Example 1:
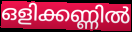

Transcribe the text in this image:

ഒളിക്കണ്ണിൽ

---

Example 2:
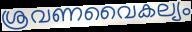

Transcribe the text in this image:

ശ്രവണവൈകല്യം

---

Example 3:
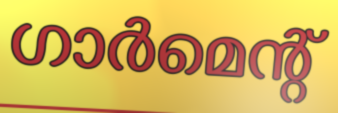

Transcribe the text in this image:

ഗാർമെന്റ്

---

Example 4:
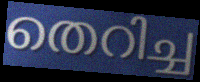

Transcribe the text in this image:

തെറിച്ച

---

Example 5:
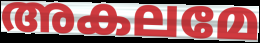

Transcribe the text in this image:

അകലമേ